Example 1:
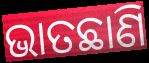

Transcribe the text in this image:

ଭାତଛାଣି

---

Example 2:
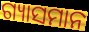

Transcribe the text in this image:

ଗ୍ୟାସମାନ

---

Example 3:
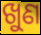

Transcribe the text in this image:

ଖୁଣ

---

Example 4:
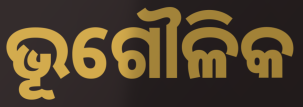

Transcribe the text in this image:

ଭୂଗୌଳିକ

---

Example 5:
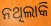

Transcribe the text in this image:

ନଥିଲାକି